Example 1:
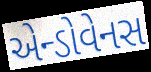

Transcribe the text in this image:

એન્ડોવેનસ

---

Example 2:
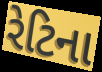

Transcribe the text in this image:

રેટિના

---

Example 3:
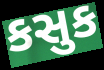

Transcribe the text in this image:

કસુક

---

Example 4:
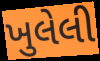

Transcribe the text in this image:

ખુલેલી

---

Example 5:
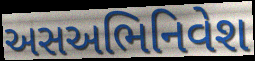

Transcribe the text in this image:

અસઅભિનિવેશ